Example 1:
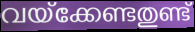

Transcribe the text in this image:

വയ്‌ക്കേണ്ടതുണ്ട്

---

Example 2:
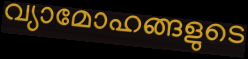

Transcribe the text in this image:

വ്യാമോഹങ്ങളുടെ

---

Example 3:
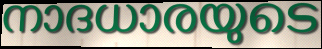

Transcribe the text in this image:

നാദധാരയുടെ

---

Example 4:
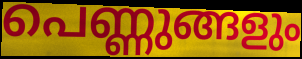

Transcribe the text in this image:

പെണ്ണുങ്ങളും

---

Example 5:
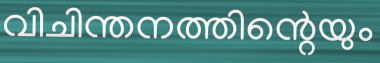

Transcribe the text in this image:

വിചിന്തനത്തിന്റെയും